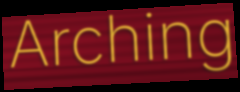
Arching